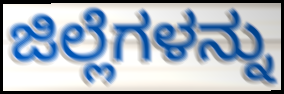
ಜಿಲ್ಲೆಗಳನ್ನು